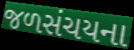
જળસંચયના